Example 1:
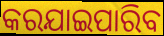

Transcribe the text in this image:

କରଯାଇପାରିବ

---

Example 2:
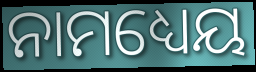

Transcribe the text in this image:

ନାମଧ୍ୟେୟ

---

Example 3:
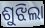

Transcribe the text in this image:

ଶୁଝିଲା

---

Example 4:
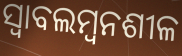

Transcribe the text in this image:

ସ୍ୱାବଲମ୍ୱନଶୀଳ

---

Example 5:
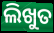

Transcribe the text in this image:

ଲିଖୁତ